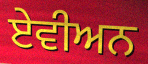
ਏਵੀਅਨ